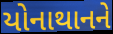
યોનાથાનને